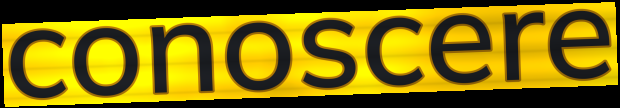
conoscere